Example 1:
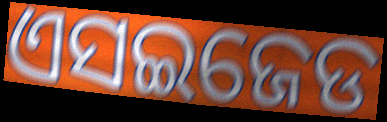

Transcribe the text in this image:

ଏସଇଜେଡ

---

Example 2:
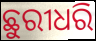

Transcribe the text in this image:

ଛୁରୀଧରି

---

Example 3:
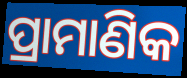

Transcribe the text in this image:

ପ୍ରାମାଣିକ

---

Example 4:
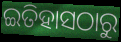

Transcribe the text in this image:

ଇତିହାସଠାରୁ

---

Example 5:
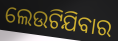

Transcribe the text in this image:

ଲେଉଟିଯିବାର